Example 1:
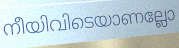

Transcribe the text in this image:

നീയിവിടെയാണല്ലോ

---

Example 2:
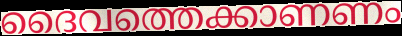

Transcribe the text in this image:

ദൈവത്തെക്കാണണം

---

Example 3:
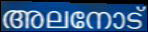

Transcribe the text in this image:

അലനോട്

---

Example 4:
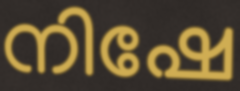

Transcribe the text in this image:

നിഷേ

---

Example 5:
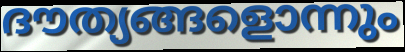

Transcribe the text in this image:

ദൗത്യങ്ങളൊന്നും